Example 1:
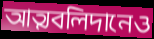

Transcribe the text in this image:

আত্মবলিদানেও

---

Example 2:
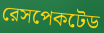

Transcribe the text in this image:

রেসপেকটেড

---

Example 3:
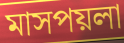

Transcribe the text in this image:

মাসপয়লা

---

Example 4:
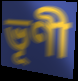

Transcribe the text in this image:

ভূণী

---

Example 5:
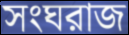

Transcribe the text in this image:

সংঘরাজ